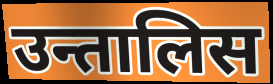
उन्तालिस